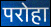
परोहा